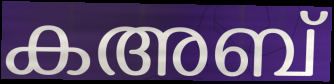
കഅബ്